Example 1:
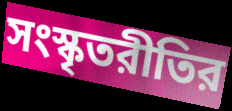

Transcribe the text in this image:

সংস্কৃতরীতির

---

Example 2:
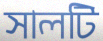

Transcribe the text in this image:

সালটি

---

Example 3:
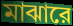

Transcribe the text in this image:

মাঝারে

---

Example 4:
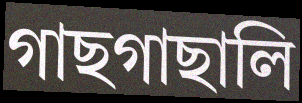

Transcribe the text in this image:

গাছগাছালি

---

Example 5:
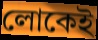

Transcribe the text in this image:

লোকেই